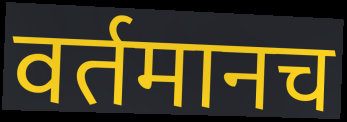
वर्तमानच